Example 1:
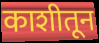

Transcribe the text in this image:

काशीतून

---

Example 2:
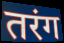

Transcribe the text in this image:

तरंग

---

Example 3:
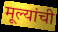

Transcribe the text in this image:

मूल्यांची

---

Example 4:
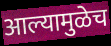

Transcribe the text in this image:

आल्यामुळेच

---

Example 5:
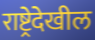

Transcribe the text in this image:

राष्ट्रेदेखील